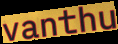
vanthu